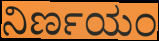
ನಿರ್ಣಯಂ